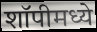
शॉपीमध्ये